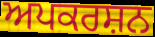
ਅਪਕਰਸ਼ਨ